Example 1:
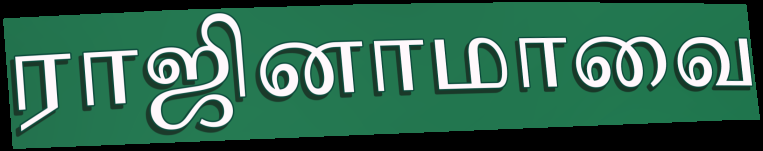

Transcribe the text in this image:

ராஜினாமாவை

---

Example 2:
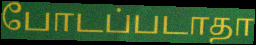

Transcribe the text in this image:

போடப்படாதா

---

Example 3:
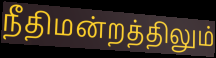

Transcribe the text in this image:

நீதிமன்றத்திலும்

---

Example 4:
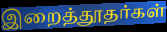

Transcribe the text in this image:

இறைத்தூதர்கள்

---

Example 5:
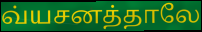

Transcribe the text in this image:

வ்யசனத்தாலே